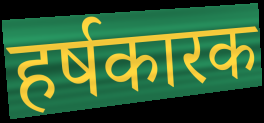
हर्षकारक